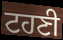
ਟਹਣੀ